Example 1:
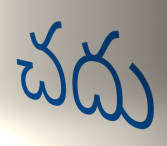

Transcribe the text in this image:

చదు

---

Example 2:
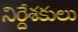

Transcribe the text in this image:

నిర్దేశకులు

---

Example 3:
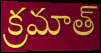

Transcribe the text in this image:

క్రమాత్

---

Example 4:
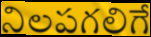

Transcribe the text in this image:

నిలపగలిగే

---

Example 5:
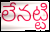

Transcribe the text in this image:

లేనట్టి